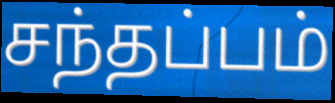
சந்தப்பம்